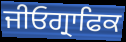
ਜੀਓਗ੍ਰਾਫਿਕ